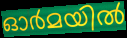
ഓർമയിൽ